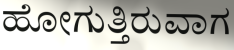
ಹೋಗುತ್ತಿರುವಾಗ